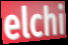
elchi